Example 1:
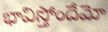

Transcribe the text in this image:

భావిస్తోందేమో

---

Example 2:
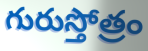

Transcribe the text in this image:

గురుస్తోత్రం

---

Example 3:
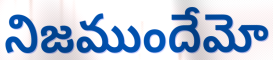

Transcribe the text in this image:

నిజముందేమో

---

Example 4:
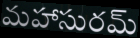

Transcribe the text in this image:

మహాసురమ్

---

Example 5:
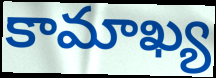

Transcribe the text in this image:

కామాఖ్య